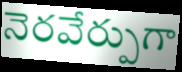
నెరవేర్పుగా